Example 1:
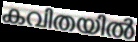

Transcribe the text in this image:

കവിതയിൽ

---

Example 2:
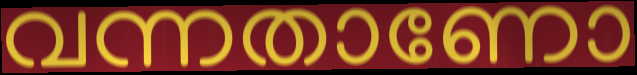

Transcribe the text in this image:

വന്നതാണോ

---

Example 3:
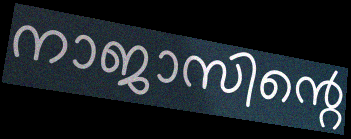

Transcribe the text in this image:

നാജാസിന്റെ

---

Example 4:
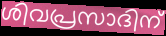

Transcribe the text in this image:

ശിവപ്രസാദിന്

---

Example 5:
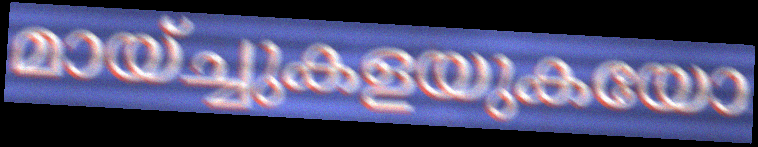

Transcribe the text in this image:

മായ്ച്ചുകളയുകയോ